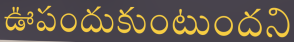
ఊపందుకుంటుందని